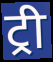
ट्री